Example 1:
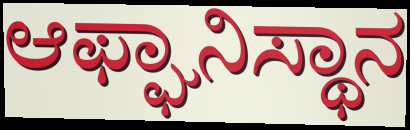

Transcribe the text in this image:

ಆಫ್ಘಾನಿಸ್ಥಾನ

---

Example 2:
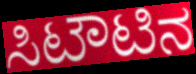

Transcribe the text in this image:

ಸಿಟೌಟಿನ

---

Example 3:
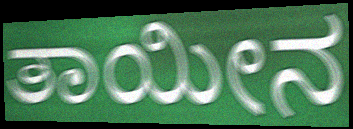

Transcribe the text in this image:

ತಾಯೀನ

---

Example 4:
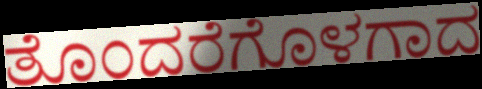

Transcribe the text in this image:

ತೊಂದರೆಗೊಳಗಾದ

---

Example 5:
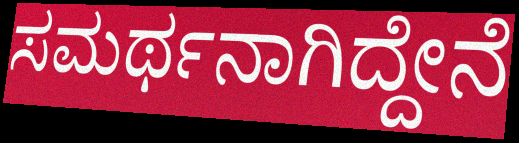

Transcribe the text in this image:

ಸಮರ್ಥನಾಗಿದ್ದೇನೆ